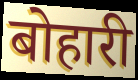
बोहारी